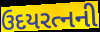
ઉદયરત્નની